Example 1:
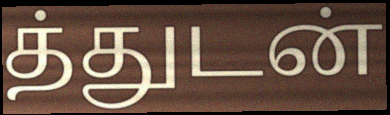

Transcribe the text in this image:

த்துடன்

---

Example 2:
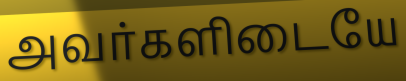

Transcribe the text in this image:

அவர்களிடையே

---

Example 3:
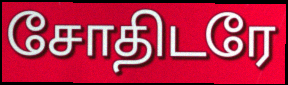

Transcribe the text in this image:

சோதிடரே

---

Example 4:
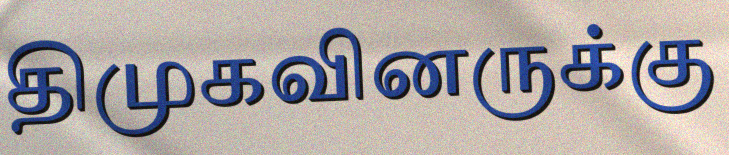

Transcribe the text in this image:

திமுகவினருக்கு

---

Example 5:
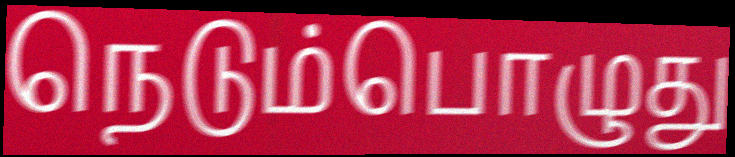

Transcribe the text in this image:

நெடும்பொழுது